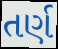
તર્ણ